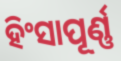
ହିଂସାପୂର୍ଣ୍ଣ